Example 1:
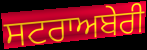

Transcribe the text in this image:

ਸਟਰਾਅਬੇਰੀ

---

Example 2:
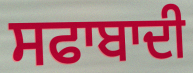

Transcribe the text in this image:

ਸਫਾਬਾਦੀ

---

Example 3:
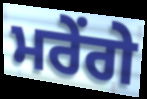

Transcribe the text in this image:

ਮਰੇਂਗੇ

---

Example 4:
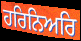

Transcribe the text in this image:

ਹਰਿਨਿਅਰਿ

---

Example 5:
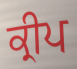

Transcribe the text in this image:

ਕ੍ਰੀਪ